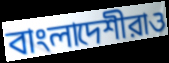
বাংলাদেশীরাও